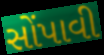
સોંપાવી